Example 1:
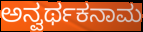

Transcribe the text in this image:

ಅನ್ವರ್ಥಕನಾಮ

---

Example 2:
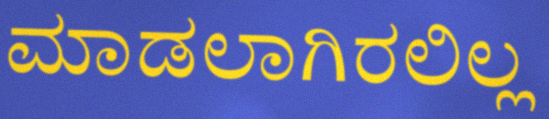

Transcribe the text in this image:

ಮಾಡಲಾಗಿರಲಿಲ್ಲ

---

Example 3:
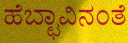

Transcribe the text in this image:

ಹೆಬ್ಟಾವಿನಂತೆ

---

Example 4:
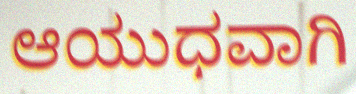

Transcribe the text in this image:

ಆಯುಧವಾಗಿ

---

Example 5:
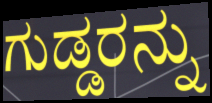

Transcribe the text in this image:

ಗುಡ್ಡರನ್ನು